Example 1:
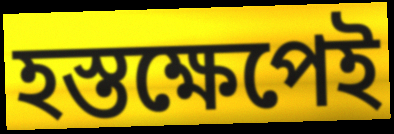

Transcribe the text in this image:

হস্তক্ষেপেই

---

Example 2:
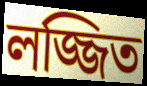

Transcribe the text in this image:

লজ্জিত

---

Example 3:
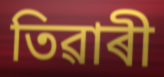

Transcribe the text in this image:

তিৱাৰী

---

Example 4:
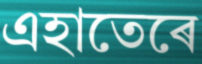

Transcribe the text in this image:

এহাতেৰে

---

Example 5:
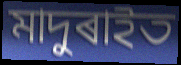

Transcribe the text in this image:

মাদুৰাইত